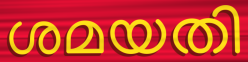
ശമയതി